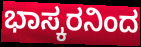
ಭಾಸ್ಕರನಿಂದ